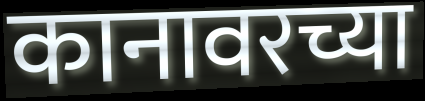
कानावरच्या